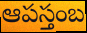
ఆపస్తంబ